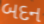
બદન